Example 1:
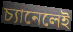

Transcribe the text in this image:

চ্যানেলেই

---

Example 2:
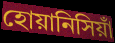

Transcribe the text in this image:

হোয়ানিসিয়াঁ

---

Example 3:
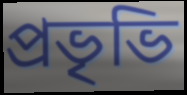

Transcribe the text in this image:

প্রভৃভি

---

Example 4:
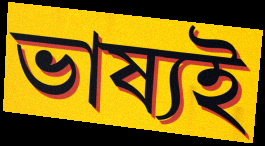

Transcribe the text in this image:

ভাষ্যই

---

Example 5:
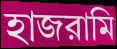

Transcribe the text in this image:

হাজরামি